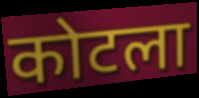
कोटला